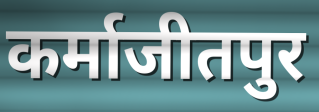
कर्माजीतपुर